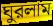
ঘুরলাম